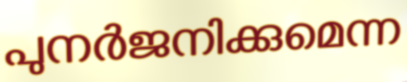
പുനർജനിക്കുമെന്ന